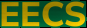
EECS